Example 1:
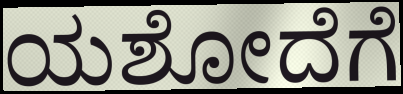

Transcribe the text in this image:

ಯಶೋದೆಗೆ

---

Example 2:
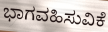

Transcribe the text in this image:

ಭಾಗವಹಿಸುವಿಕೆ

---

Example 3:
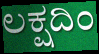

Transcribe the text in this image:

ಲಕ್ಷದಿಂ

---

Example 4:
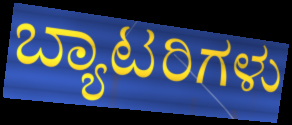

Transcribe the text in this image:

ಬ್ಯಾಟರಿಗಳು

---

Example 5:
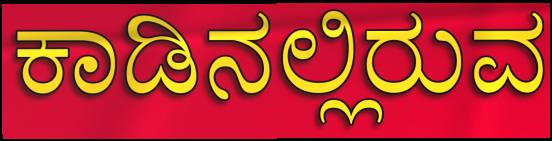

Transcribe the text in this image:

ಕಾಡಿನಲ್ಲಿರುವ